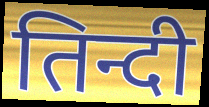
तिन्दी